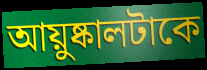
আয়ুষ্কালটাকে